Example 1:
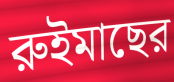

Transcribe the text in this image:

রুইমাছের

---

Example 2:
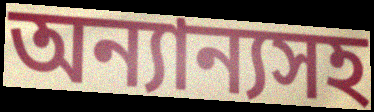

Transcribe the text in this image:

অন্যান্যসহ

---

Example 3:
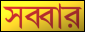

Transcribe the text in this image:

সব্বার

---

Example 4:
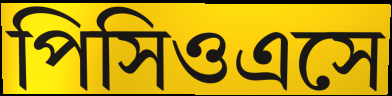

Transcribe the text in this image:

পিসিওএসে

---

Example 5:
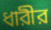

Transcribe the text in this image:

ধারীর